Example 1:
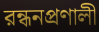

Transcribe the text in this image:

রন্ধনপ্রণালী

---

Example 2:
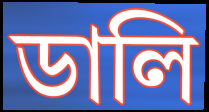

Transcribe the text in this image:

ডালি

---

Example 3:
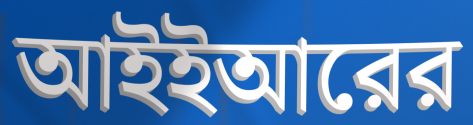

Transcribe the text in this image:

আইইআরের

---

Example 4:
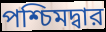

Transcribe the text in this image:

পশ্চিমদ্বার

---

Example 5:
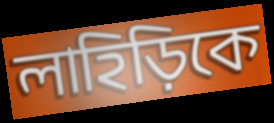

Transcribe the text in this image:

লাহিড়িকে